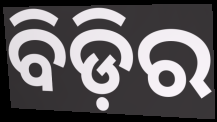
ବିଡ଼ିର